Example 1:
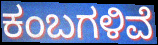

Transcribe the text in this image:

ಕಂಬಗಳಿವೆ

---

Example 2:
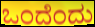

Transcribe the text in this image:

ಒಂದೆಂದು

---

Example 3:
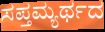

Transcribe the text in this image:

ಸಪ್ತಮ್ಯರ್ಥದ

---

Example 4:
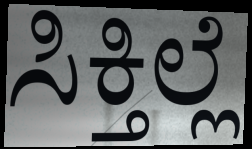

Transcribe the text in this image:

ಸಿಕ್ತಿಲ್ಲೆ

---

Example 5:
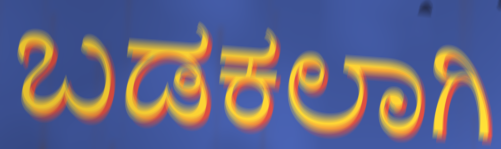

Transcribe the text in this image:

ಬಡಕಲಾಗಿ